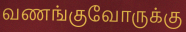
வணங்குவோருக்கு